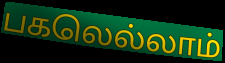
பகலெல்லாம்